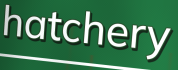
hatchery